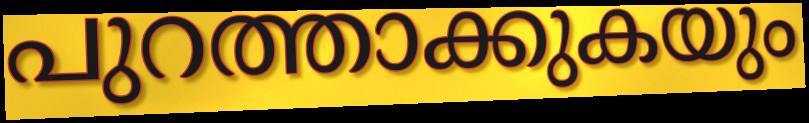
പുറത്താക്കുകയും